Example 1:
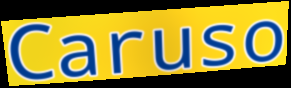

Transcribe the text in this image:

Caruso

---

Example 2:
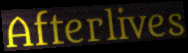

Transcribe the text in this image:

Afterlives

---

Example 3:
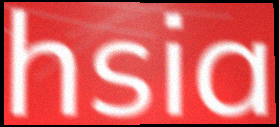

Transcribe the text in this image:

hsia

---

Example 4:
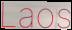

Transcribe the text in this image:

Laos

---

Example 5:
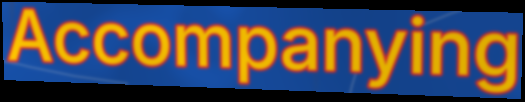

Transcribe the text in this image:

Accompanying